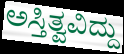
ಅಸ್ತಿತ್ವವಿದ್ದು